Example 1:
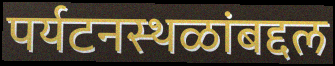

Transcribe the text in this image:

पर्यटनस्थळांबद्दल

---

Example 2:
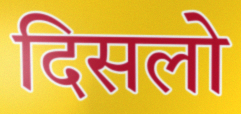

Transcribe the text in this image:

दिसलो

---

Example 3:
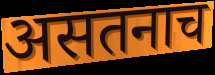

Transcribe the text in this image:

असतनाच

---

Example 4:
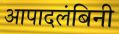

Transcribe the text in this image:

आपादलंबिनी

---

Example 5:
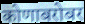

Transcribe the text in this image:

कोणाबरोबर